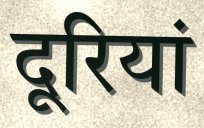
दूरियां